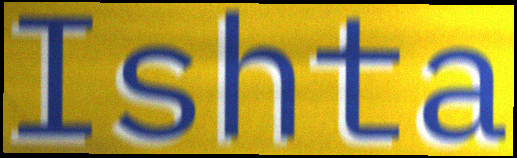
Ishta